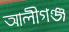
আলীগঞ্জ